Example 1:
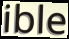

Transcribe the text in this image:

ible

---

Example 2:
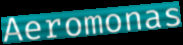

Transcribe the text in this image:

Aeromonas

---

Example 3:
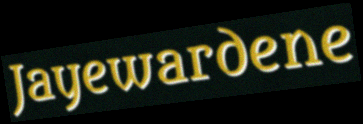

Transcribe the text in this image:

Jayewardene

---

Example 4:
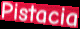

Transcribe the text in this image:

Pistacia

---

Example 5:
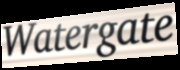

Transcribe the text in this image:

Watergate